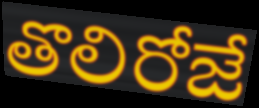
తొలిరోజే